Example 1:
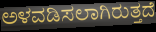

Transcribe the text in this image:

ಅಳವಡಿಸಲಾಗಿರುತ್ತದೆ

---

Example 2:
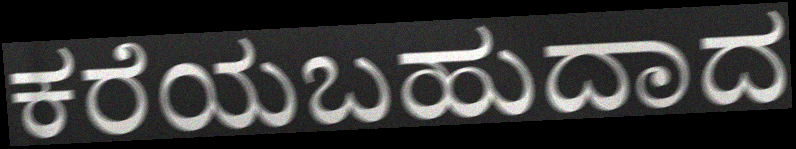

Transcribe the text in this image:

ಕರೆಯಬಹುದಾದ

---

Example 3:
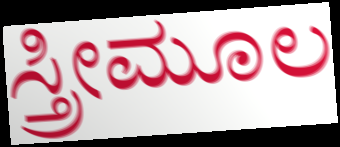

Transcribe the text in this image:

ಸ್ತ್ರೀಮೂಲ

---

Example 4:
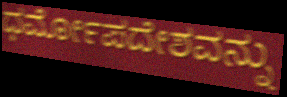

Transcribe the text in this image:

ಧರ್ಮೋಪದೇಶವನ್ನು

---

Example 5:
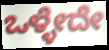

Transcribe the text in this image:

ಒಳ್ಳೇದೇ